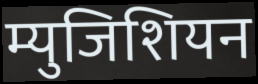
म्‍युजिशियन